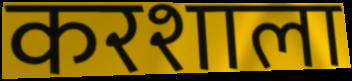
करशाला